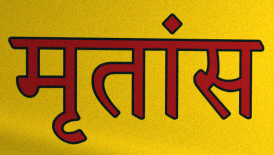
मृतांस